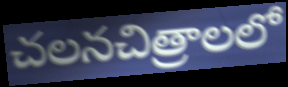
చలనచిత్రాలలో